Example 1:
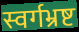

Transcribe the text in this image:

स्वर्गभ्रष्ट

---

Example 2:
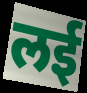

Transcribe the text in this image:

लई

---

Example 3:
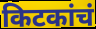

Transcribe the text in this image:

किटकांचं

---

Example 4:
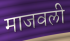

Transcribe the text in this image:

माजवली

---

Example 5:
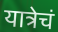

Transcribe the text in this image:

यात्रेचं